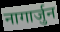
नागार्जुन